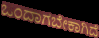
ಒಂದಾಗಬೇಕಾಗಿದೆ